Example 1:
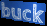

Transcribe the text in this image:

buck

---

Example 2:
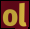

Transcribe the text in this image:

ol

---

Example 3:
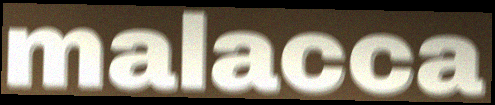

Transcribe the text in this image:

malacca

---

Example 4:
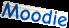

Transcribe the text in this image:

Moodie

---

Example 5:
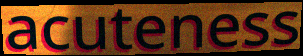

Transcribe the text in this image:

acuteness